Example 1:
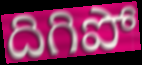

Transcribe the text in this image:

దిగిపో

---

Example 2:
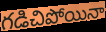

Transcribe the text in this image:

గడిచిపోయినా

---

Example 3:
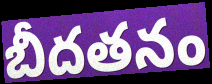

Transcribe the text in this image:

బీదతనం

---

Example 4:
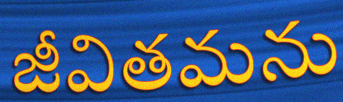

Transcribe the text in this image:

జీవితమను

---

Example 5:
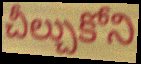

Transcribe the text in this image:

చీల్చుకోని